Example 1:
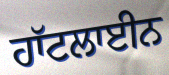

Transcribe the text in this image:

ਹਾੱਟਲਾਈਨ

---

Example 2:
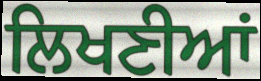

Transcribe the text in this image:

ਲਿਖਣੀਆਂ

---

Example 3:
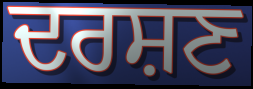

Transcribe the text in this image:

ਦਰਸ਼ਣ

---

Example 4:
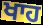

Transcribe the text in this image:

ਖਾਹ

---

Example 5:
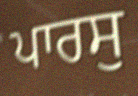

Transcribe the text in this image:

ਪਾਰਸੁ